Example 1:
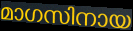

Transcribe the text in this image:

മാഗസിനായ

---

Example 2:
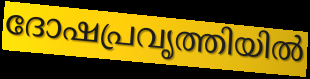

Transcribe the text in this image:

ദോഷപ്രവൃത്തിയിൽ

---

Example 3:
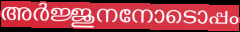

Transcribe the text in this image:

അർജ്ജുനനോടൊപ്പം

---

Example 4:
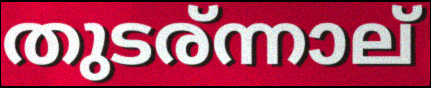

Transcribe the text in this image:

തുടര്ന്നാല്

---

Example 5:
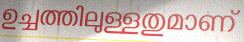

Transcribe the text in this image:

ഉച്ചത്തിലുള്ളതുമാണ്